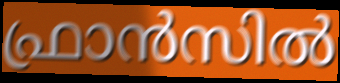
ഫ്രാൻസിൽ